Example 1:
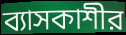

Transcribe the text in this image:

ব্যাসকাশীর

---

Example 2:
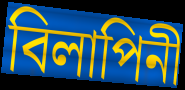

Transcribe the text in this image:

বিলাপিনী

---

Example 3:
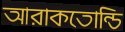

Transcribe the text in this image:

আরাকতোন্ডি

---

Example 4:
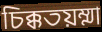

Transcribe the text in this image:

চিক্কতয়ম্মা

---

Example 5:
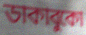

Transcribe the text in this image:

ডাকাবুকো